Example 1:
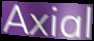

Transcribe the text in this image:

Axial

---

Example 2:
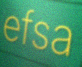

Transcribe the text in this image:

efsa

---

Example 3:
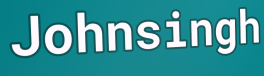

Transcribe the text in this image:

Johnsingh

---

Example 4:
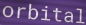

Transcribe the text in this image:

orbital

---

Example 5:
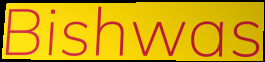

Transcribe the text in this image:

Bishwas